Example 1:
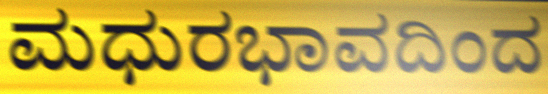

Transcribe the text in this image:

ಮಧುರಭಾವದಿಂದ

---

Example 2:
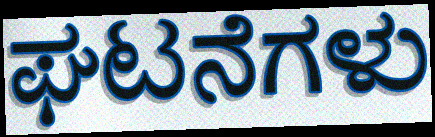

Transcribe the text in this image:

ಘಟನೆಗಳು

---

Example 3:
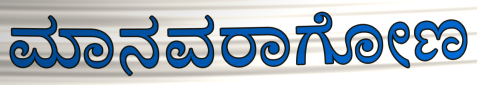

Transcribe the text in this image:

ಮಾನವರಾಗೋಣ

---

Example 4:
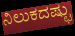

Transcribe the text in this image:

ನಿಲುಕದಷ್ಟು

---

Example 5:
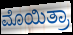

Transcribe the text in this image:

ಮೊಯಿತ್ರಾ